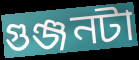
গুঞ্জনটা